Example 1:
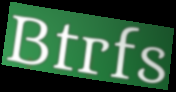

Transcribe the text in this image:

Btrfs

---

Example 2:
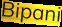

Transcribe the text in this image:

Bipani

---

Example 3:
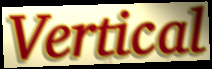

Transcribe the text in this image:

Vertical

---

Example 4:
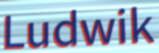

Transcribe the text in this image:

Ludwik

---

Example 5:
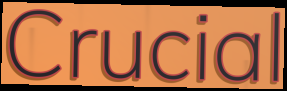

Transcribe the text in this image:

Crucial